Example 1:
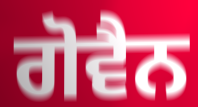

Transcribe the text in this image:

ਗੋਵੈਨ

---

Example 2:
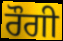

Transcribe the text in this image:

ਰੌਗੀ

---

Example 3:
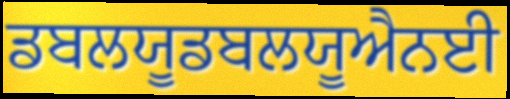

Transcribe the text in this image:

ਡਬਲਯੂਡਬਲਯੂਐਨਈ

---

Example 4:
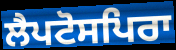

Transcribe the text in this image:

ਲੈਪਟੋਸਪਿਰਾ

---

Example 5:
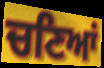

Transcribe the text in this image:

ਚਣਿਆਂ